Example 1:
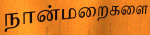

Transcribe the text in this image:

நான்மறைகளை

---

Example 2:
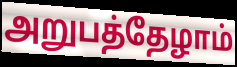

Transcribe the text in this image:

அறுபத்தேழாம்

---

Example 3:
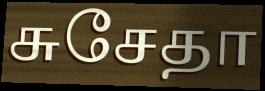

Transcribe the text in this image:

சுசேதா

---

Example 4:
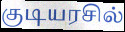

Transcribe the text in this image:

குடியரசில்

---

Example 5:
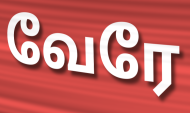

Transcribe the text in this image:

வேரே